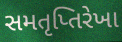
સમતૃપ્તિરેખા